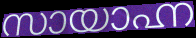
സായാഹ്ന